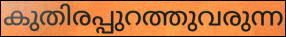
കുതിരപ്പുറത്തുവരുന്ന